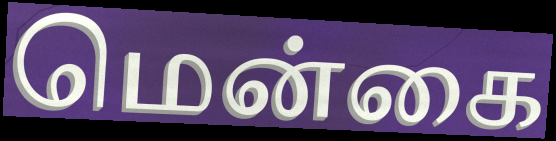
மென்கை